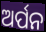
ଅର୍ପନ